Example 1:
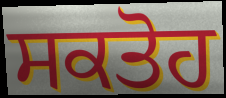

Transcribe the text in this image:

ਸਕਤੋਹ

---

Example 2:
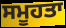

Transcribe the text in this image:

ਸਮੂਹਤਾ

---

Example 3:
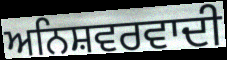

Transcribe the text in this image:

ਅਨਿਸ਼ਵਰਵਾਦੀ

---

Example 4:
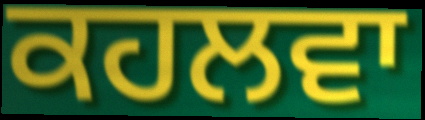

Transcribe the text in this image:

ਕਹਲਵਾ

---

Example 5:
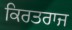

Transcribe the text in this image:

ਕਿਰਤਰਾਜ